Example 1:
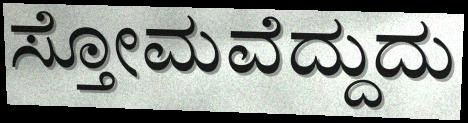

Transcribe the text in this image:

ಸ್ತೋಮವೆದ್ದುದು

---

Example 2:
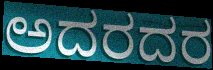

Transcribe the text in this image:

ಅದರದರ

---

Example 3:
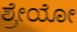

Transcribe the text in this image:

ಶ್ರೇಯೋ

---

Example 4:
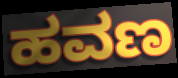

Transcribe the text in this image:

ಹವಣ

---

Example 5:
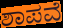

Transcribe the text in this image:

ಶಾಪವೆ